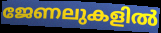
ജേണലുകളിൽ